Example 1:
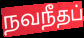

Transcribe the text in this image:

நவநீதப்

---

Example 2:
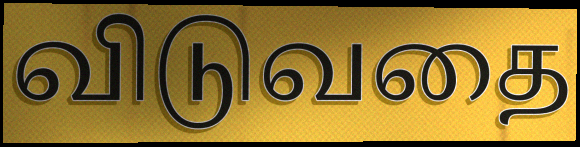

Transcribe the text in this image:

விடுவதை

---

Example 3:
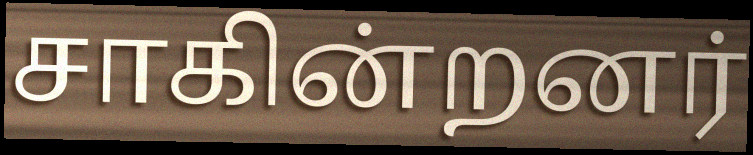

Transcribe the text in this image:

சாகின்றனர்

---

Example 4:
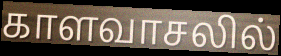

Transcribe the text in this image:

காளவாசலில்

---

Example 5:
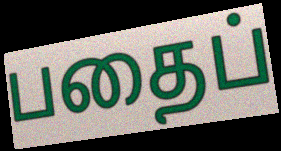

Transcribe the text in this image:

பதைப்